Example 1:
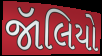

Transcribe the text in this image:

જૉલિયો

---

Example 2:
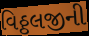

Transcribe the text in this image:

વિઠ્ઠલજીની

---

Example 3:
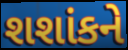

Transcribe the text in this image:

શશાંકને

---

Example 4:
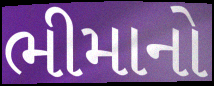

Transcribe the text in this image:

ભીમાનો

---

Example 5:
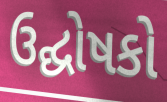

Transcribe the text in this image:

ઉદ્ઘોષકો